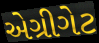
એગ્રીગેટ